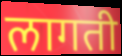
लागती